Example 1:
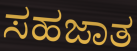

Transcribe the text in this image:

ಸಹಜಾತ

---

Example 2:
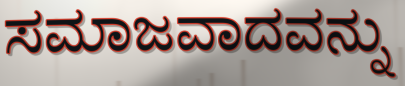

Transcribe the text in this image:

ಸಮಾಜವಾದವನ್ನು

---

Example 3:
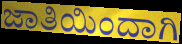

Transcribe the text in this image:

ಜಾತಿಯಿಂದಾಗಿ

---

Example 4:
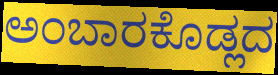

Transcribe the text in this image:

ಅಂಬಾರಕೊಡ್ಲದ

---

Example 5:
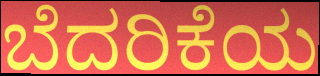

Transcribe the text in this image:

ಬೆದರಿಕೆಯ